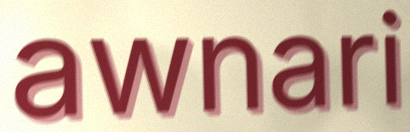
awnari